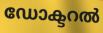
ഡോക്ടറൽ